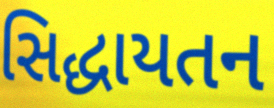
સિદ્ધાયતન